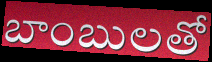
బాంబులతో